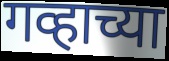
गव्हाच्या